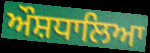
ਔਸ਼ਧਾਲਿਆ